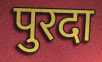
पुरदा